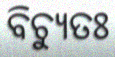
ବିଚ୍ୟୁତଃ